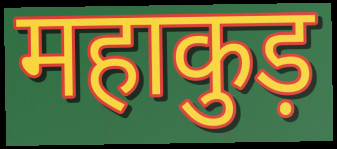
महाकुड़